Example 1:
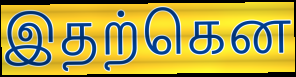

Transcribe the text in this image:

இதற்கென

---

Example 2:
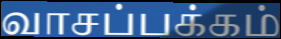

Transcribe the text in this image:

வாசப்பக்கம்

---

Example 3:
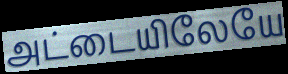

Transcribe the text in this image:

அட்டையிலேயே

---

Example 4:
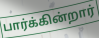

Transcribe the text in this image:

பார்க்கின்றார்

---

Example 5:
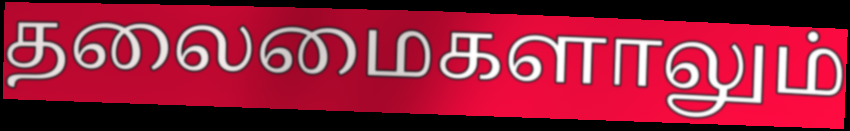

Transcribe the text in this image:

தலைமைகளாலும்